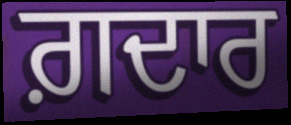
ਗ਼ਦਾਰ